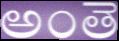
అంతె